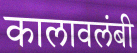
कालावलंबी